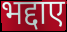
भद्दाए